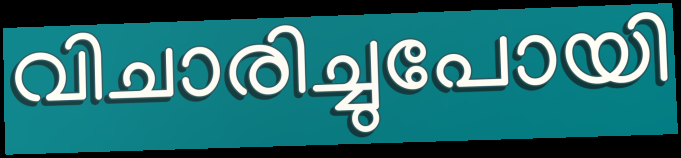
വിചാരിച്ചുപോയി